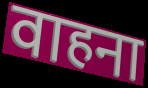
वाहना